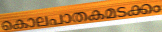
കൊലപാതകമടക്കം